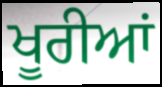
ਖੂਰੀਆਂ